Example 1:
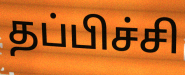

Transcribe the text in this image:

தப்பிச்சி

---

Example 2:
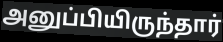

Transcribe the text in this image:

அனுப்பியிருந்தார்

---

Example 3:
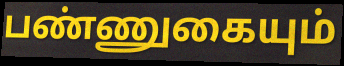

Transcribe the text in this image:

பண்ணுகையும்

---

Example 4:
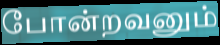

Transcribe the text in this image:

போன்றவனும்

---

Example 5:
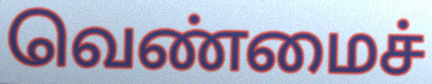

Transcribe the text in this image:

வெண்மைச்